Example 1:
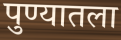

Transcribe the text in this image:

पुण्यातला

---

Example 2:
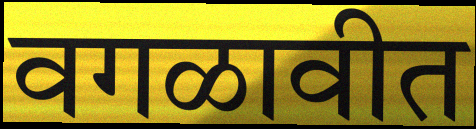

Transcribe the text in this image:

वगळावीत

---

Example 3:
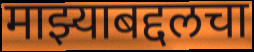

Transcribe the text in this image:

माझ्याबद्दलचा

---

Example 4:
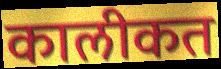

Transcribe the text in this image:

कालीकत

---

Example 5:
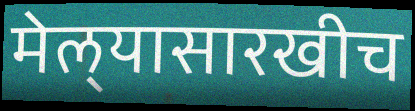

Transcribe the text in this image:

मेल्यासारखीच